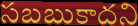
సబబుకాదని